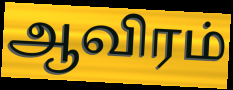
ஆவிரம்